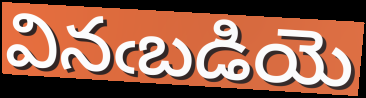
వినఁబడియె